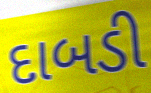
દાબડી